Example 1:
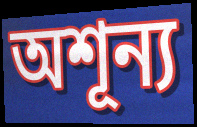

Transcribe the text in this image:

অশূন্য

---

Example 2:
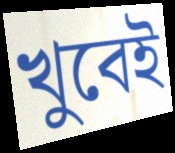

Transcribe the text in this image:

খুবেই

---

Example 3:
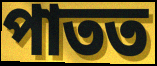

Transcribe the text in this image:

পাতত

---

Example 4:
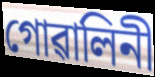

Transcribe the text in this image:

গোৱালিনী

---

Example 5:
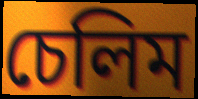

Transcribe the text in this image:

চেলিম